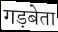
गड़बेता